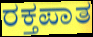
ರಕ್ತಪಾತ